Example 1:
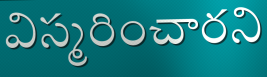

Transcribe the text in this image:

విస్మరించారని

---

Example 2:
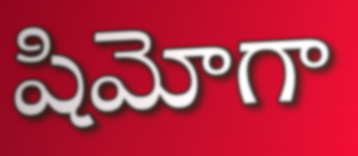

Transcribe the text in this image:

షిమోగా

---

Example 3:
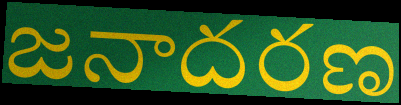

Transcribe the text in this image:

జనాదరణ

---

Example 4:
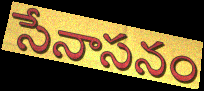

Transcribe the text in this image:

సేనాసనం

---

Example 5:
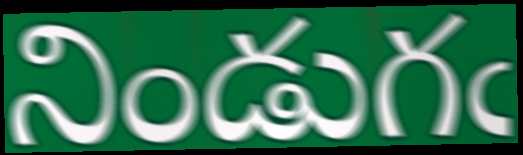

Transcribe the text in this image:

నిండుగఁ